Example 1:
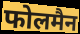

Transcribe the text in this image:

फोलमैन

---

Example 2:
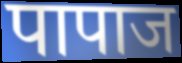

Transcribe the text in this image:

पापाज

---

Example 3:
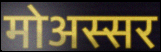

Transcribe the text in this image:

मोअस्सर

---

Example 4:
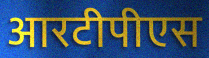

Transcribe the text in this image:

आरटीपीएस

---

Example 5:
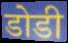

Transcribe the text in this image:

डोडी